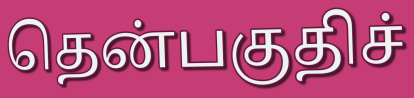
தென்பகுதிச்